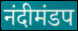
नंदीमंडप